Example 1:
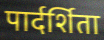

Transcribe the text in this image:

पार्दर्शिता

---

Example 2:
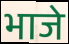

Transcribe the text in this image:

भाजे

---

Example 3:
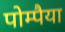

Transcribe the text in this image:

पोम्पैया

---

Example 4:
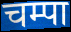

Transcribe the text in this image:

चम्पा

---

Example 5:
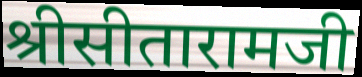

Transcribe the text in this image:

श्रीसीतारामजी